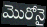
మొరోనై